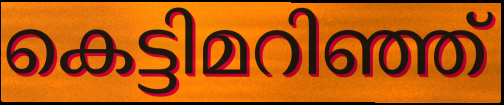
കെട്ടിമറിഞ്ഞ്